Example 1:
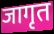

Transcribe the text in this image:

जागृत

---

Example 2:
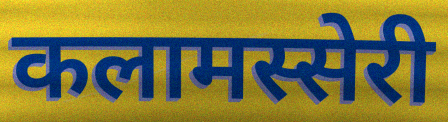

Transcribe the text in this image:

कलामस्सेरी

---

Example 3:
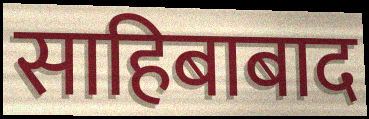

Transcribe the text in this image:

साहिबाबाद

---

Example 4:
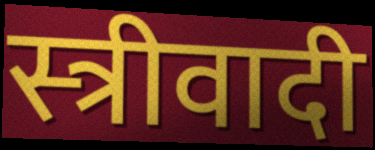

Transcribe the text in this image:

स्त्रीवादी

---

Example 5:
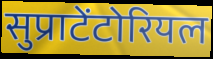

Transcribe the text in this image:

सुप्राटेंटोरियल